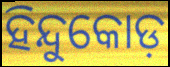
ହିନ୍ଦୁକୋଡ଼